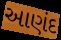
આણંદ